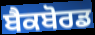
ਬੈਕਬੋਰਡ